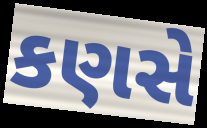
કણસે